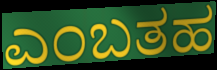
ಎಂಬತಹ